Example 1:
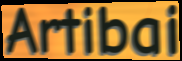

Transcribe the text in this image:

Artibai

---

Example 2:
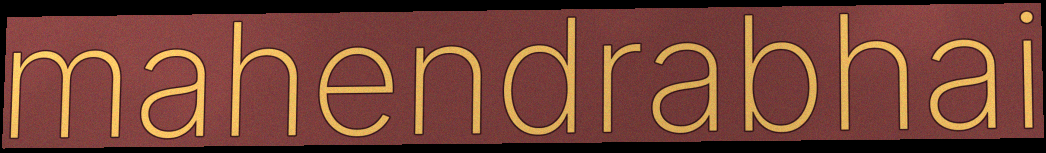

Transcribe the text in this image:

mahendrabhai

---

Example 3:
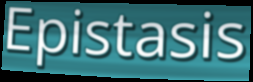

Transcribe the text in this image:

Epistasis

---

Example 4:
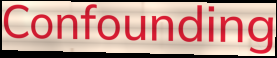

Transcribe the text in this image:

Confounding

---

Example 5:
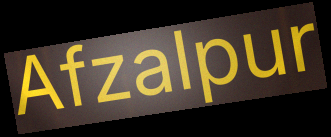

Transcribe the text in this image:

Afzalpur